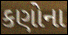
કણોના